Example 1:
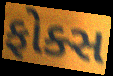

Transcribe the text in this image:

ફોક્સ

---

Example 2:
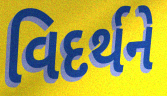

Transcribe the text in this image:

વિદર્થને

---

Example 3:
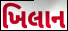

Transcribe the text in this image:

ખિલાન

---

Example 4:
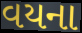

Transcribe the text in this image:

વયના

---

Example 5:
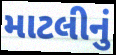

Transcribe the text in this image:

માટલીનું